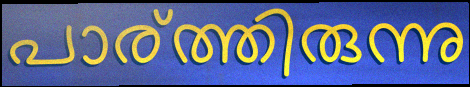
പാര്ത്തിരുന്നു